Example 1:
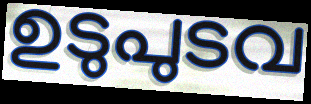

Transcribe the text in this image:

ഉടുപുടവ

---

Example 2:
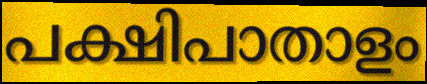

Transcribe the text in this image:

പക്ഷിപാതാളം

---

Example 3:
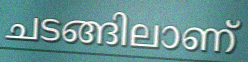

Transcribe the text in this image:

ചടങ്ങിലാണ്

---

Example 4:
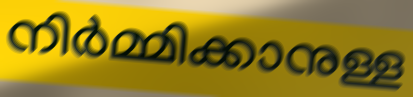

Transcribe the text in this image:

നിർമ്മിക്കാനുള്ള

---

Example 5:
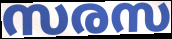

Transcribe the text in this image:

സരസ